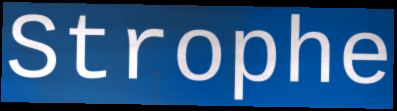
Strophe